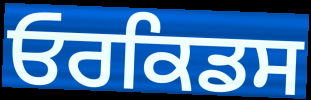
ਓਰਕਿਡਸ